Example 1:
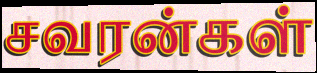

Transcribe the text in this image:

சவரன்கள்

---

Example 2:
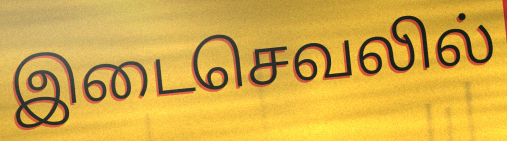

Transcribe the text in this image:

இடைசெவலில்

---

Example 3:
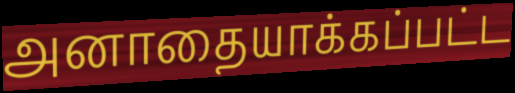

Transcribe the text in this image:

அனாதையாக்கப்பட்ட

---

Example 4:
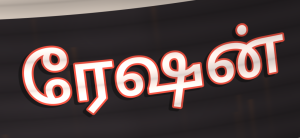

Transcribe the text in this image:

ரேஷன்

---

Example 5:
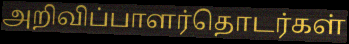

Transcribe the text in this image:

அறிவிப்பாளர்தொடர்கள்